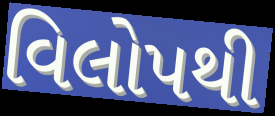
વિલોપથી